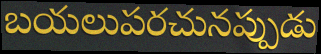
బయలుపరచునప్పుడు